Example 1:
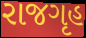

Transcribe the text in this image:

રાજગૃહ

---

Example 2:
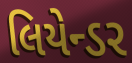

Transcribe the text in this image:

લિયેન્ડર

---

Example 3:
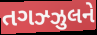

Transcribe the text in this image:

તગઝ્ઝુલને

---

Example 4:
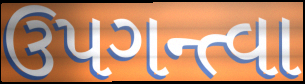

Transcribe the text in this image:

ઉપગન્ત્વા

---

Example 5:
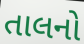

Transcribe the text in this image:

તાલનો